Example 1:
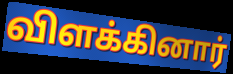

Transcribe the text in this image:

விளக்கினார்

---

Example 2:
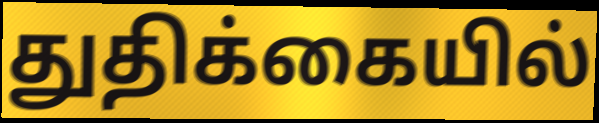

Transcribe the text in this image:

துதிக்கையில்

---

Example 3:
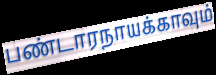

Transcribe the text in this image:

பண்டாரநாயக்காவும்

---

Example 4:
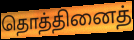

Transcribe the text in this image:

தொத்தினைத்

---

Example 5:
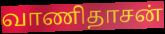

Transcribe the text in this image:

வாணிதாசன்